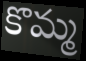
కొమ్మ